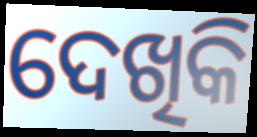
ଦେଖିକି